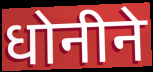
धोनीने